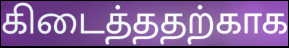
கிடைத்ததற்காக